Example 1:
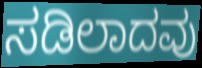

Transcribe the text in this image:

ಸಡಿಲಾದವು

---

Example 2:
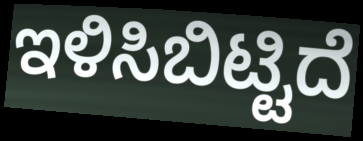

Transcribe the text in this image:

ಇಳಿಸಿಬಿಟ್ಟಿದೆ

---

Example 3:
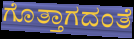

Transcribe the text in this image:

ಗೊತ್ತಾಗದಂತೆ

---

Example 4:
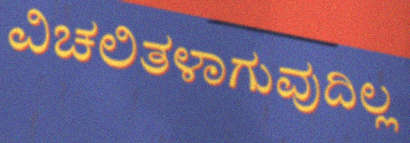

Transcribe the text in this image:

ವಿಚಲಿತಳಾಗುವುದಿಲ್ಲ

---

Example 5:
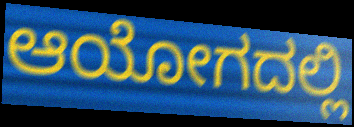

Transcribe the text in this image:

ಆಯೋಗದಲ್ಲಿ